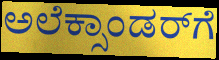
ಅಲೆಕ್ಸಾಂಡರ್‌ಗೆ